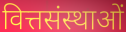
वित्तसंस्थाओं